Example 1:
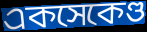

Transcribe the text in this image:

একসেকেণ্ড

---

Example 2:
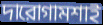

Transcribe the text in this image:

দারোগামশাই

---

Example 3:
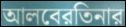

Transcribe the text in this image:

আলবেরতিনার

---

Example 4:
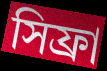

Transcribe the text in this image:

সিফ্রা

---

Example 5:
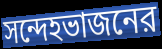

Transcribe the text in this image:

সন্দেহভাজনের